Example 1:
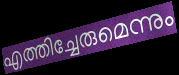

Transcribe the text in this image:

എത്തിച്ചേരുമെന്നും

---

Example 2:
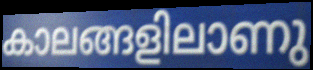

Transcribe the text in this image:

കാലങ്ങളിലാണു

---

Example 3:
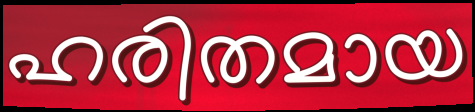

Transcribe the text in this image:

ഹരിതമായ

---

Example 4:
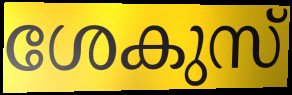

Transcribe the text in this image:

ശേകുസ്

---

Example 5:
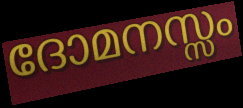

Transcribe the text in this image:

ദോമനസ്സം